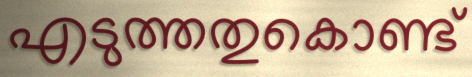
എടുത്തതുകൊണ്ട്